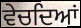
ਵੇਚਦਿਆਂ